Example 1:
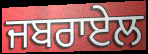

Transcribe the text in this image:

ਜਬਰਾਏਲ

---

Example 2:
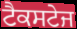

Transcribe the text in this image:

ਟੈਕਸਟੇਜ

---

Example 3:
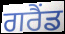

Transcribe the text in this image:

ਗਰੈਂਡ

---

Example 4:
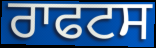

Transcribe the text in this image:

ਰਾਫਟਸ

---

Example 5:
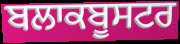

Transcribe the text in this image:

ਬਲਾਕਬੂਸਟਰ